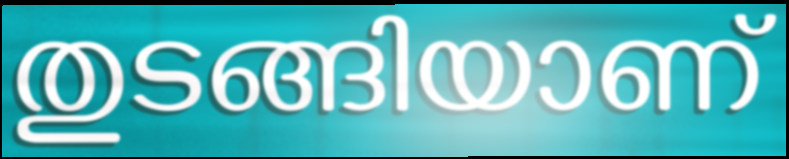
തുടങ്ങിയാണ്